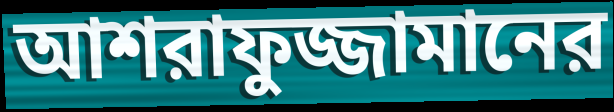
আশরাফুজ্জামানের